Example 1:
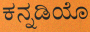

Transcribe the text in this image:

ಕನ್ನಡಿಯೊ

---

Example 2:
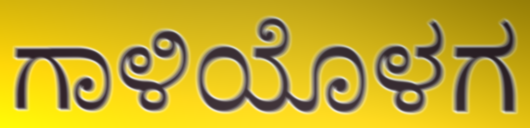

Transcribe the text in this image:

ಗಾಳಿಯೊಳಗ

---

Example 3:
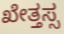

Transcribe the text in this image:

ಖೇತ್ತಸ್ಸ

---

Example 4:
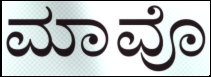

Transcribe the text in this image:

ಮಾವೊ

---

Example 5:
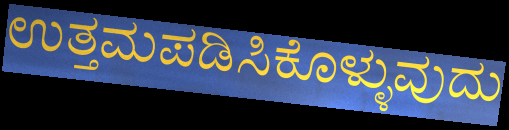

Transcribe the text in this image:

ಉತ್ತಮಪಡಿಸಿಕೊಳ್ಳುವುದು